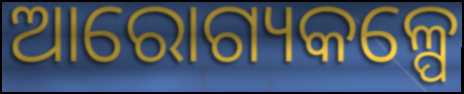
ଆରୋଗ୍ୟକଳ୍ପେ